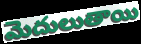
మెదులుతాయి